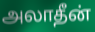
அலாதீன்